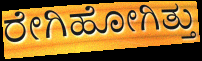
ರೇಗಿಹೋಗಿತ್ತು